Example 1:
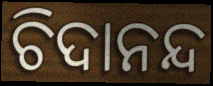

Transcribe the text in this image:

ଚିଦାନନ୍ଦ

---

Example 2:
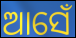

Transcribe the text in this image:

ଆସେଁ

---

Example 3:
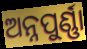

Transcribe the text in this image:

ଅନ୍ନପୁର୍ଣ୍ଣା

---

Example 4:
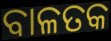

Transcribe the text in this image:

ବାଳତକ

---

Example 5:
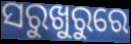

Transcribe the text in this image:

ସରୁଖୁରୁରେ